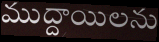
ముద్దాయిలను